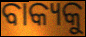
ବାକ୍ୟକୁ